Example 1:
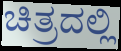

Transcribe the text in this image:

ಚಿತ್ರದಲ್ಲಿ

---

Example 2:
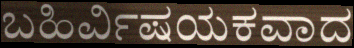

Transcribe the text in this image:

ಬಹಿರ್ವಿಷಯಕವಾದ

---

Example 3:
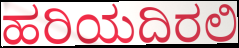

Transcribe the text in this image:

ಹರಿಯದಿರಲಿ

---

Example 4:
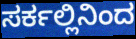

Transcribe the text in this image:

ಸರ್ಕಲ್ಲಿನಿಂದ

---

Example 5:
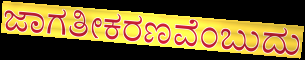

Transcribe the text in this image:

ಜಾಗತೀಕರಣವೆಂಬುದು